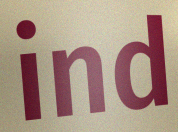
ind